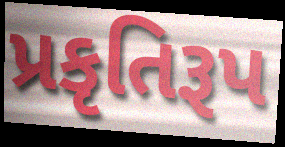
પ્રકૃતિરૂપ